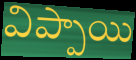
విప్పాయి